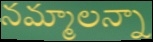
నమ్మాలన్నా